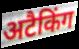
अटैकिंग